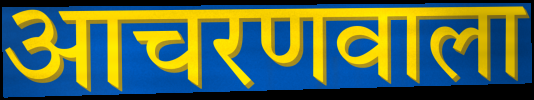
आचरणवाला